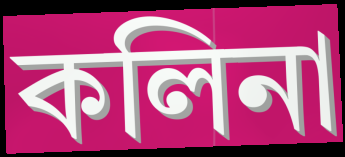
কলিনা